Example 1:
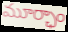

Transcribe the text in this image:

మూర్ఛాం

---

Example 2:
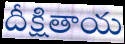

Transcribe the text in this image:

దీక్షితాయ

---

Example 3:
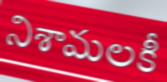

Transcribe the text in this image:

నిశామలకీ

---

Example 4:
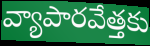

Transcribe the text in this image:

వ్యాపారవేత్తకు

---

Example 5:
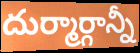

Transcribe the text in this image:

దుర్మార్గాన్నీ